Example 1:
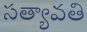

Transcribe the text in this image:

సత్యావతి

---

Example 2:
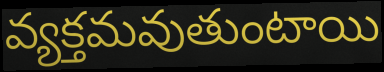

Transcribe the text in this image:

వ్యక్తమవుతుంటాయి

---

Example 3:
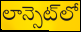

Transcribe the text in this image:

లాన్సెట్‌లో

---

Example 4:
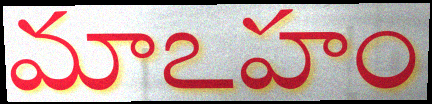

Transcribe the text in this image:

మాఽహం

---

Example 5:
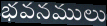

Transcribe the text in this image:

భవనములు